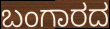
ಬಂಗಾರದ